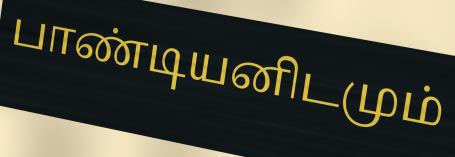
பாண்டியனிடமும்